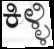
ಕಿಳ್ಳಿ